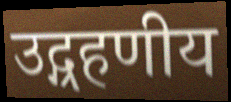
उद्ग्रहणीय